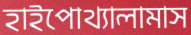
হাইপোথ্যালামাস